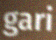
gari